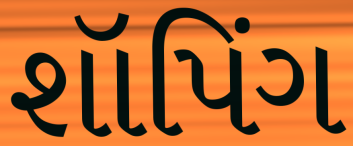
શૉપિંગ